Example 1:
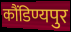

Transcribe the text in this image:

कौंडिण्यपुर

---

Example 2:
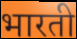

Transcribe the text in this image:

भारती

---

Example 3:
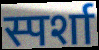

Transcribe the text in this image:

स्पर्शा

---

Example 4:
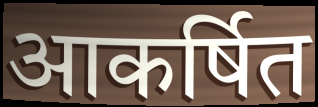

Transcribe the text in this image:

आकर्षित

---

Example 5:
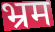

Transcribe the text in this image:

भ्रम